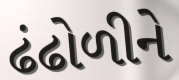
ઢંઢોળીને